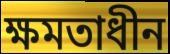
ক্ষমতাধীন